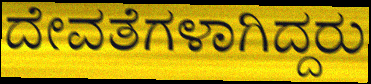
ದೇವತೆಗಳಾಗಿದ್ದರು